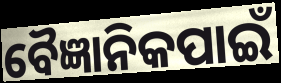
ବୈଜ୍ଞାନିକପାଇଁ